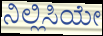
ನಿಲ್ಲಿಸಿಯೇ